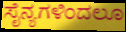
ಸೈನ್ಯಗಳಿಂದಲೂ